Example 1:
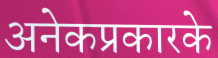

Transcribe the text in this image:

अनेकप्रकारके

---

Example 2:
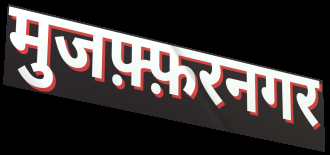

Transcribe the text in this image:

मुजफ़्फ़रनगर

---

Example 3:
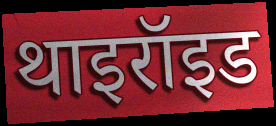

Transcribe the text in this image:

थाइरॉइड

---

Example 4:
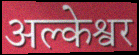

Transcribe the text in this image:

अल्केश्वर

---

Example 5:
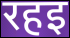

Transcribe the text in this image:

रहइ